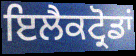
ਇਲੈਕਟ੍ਰੋਡਾਂ